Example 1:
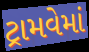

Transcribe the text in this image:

ટ્રામવેમાં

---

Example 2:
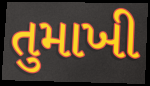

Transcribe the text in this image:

તુમાખી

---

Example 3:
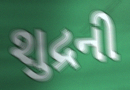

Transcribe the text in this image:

શુદ્રની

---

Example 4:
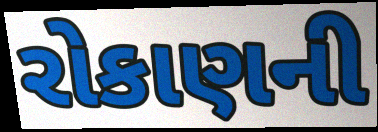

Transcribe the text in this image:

રોકાણની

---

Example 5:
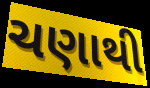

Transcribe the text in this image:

ચણાથી